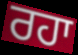
ਰਹਾ